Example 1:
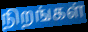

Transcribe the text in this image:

நிறங்கள்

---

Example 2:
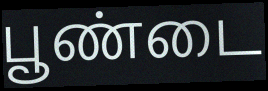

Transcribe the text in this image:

பூண்டை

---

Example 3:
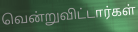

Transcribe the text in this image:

வென்றுவிட்டார்கள்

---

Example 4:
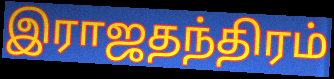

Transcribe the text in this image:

இராஜதந்திரம்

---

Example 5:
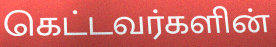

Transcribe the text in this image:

கெட்டவர்களின்